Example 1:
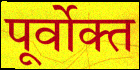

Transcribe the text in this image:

पूर्वोक्‍त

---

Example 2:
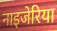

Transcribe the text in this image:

नाइजेरिया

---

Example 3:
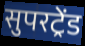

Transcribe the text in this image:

सुपरट्रेंड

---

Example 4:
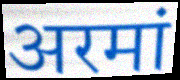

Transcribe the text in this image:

अरमां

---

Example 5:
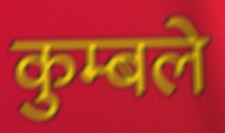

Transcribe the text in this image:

कुम्बले